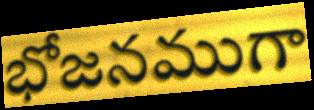
భోజనముగా